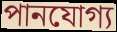
পানযোগ্য